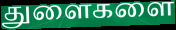
துளைகளை